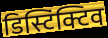
डिस्टिंक्टिव